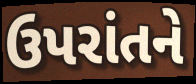
ઉપરાંતને